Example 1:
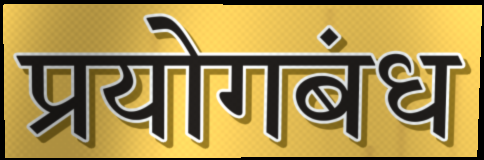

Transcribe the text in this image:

प्रयोगबंध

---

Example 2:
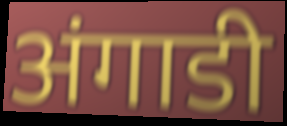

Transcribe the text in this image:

अंगाडी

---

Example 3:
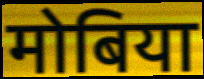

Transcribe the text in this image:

मोबिया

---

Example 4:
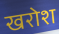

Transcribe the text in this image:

खरोश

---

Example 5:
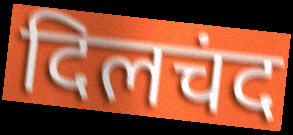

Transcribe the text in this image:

दिलचंद